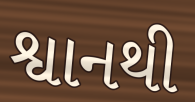
શ્વાનથી